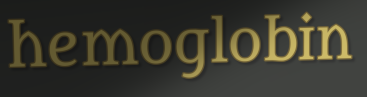
hemoglobin